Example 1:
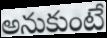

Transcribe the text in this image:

అనుకుంటే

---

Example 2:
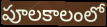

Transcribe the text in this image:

పూలకాలంలో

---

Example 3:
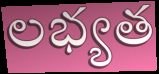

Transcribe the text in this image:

లభ్యత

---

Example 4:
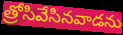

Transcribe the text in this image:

త్రోసివేసినవాడను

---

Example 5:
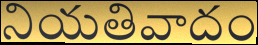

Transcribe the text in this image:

నియతివాదం